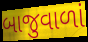
બાજુવાળાં